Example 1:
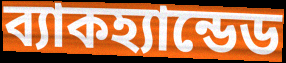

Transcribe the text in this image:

ব্যাকহ্যান্ডেড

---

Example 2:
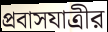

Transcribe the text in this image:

প্রবাসযাত্রীর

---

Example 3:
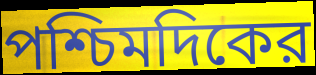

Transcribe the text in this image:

পশ্চিমদিকের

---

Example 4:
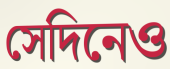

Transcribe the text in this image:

সেদিনেও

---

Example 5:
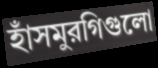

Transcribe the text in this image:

হাঁসমুরগিগুলো